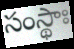
సంస్థాః